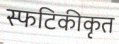
स्फटिकीकृत